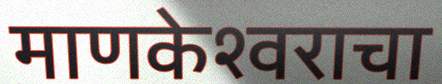
माणकेश्वराचा